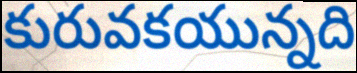
కురువకయున్నది